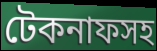
টেকনাফসহ